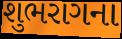
શુભરાગના